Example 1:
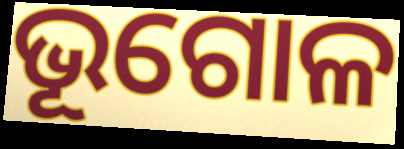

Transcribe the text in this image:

ଭୂଗୋଳ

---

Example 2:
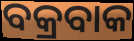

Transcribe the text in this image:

ବକ୍ରବାକ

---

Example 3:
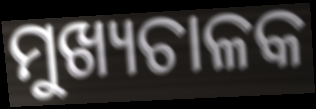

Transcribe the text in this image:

ମୁଖ୍ୟଚାଳକ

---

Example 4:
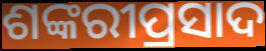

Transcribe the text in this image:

ଶଙ୍କରୀପ୍ରସାଦ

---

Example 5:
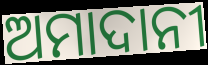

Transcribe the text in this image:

ଅମାଦାନୀ